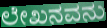
ಲೇಖನವನು